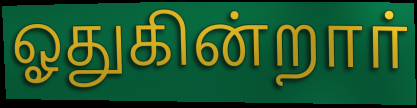
ஓதுகின்றார்